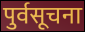
पुर्वसूचना